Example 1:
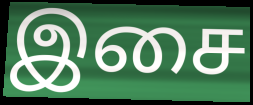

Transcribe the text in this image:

இசை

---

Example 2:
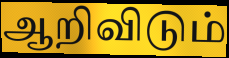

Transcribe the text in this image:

ஆறிவிடும்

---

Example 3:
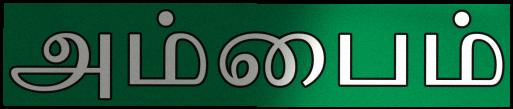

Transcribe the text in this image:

அம்பைம்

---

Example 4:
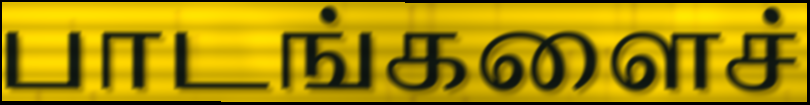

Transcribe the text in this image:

பாடங்களைச்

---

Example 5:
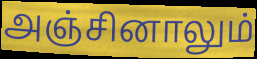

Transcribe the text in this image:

அஞ்சினாலும்